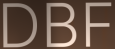
DBF